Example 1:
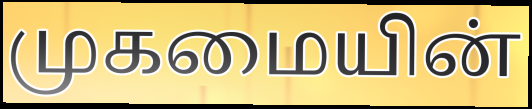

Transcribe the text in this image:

முகமையின்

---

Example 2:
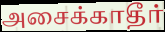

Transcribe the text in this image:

அசைக்காதீர்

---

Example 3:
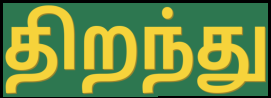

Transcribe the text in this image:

திறந்து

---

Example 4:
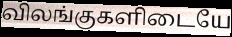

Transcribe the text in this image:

விலங்குகளிடையே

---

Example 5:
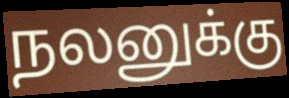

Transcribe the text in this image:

நலனுக்கு